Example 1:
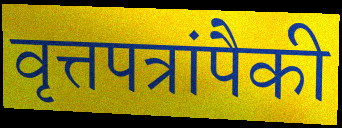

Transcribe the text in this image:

वृत्तपत्रांपैकी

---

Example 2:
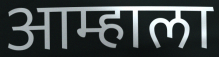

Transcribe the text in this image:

आम्हाला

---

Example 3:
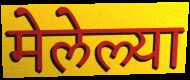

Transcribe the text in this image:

मेलेल्या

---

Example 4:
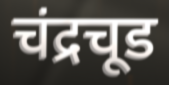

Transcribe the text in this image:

चंद्रचूड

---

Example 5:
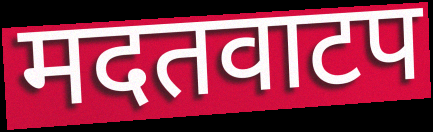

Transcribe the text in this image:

मदतवाटप